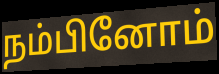
நம்பினோம்